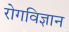
रोगविज्ञान